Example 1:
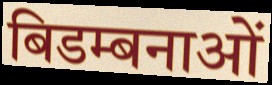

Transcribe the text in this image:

बिडम्बनाओं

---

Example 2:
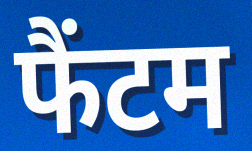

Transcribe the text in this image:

फैंटम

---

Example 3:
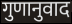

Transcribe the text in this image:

गुणानुवाद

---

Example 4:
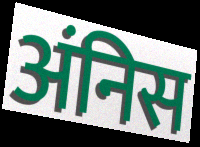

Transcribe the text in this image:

अंनिस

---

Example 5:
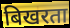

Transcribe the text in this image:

बिखरता